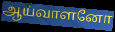
ஆய்வாளனோ